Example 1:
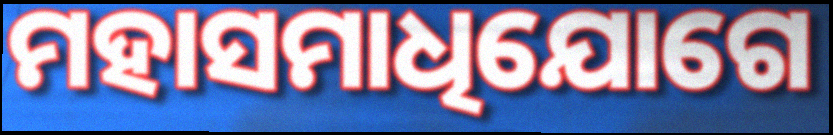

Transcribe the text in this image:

ମହାସମାଧିଯୋଗେ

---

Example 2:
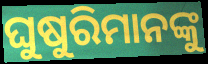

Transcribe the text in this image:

ଘୁଷୁରିମାନଙ୍କୁ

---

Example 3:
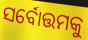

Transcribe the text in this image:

ସର୍ବୋତ୍ତମକୁ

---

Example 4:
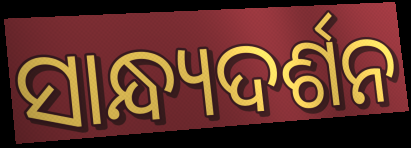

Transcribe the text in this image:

ସାନ୍ଧ୍ୟଦର୍ଶନ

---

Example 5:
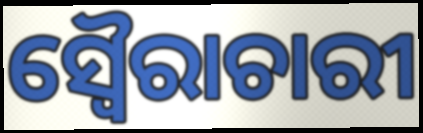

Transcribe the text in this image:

ସ୍ୱୈରାଚାରୀ